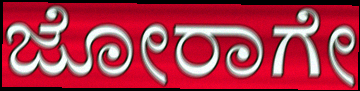
ಜೋರಾಗೇ